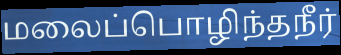
மலைப்பொழிந்தநீர்